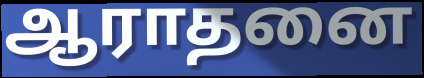
ஆராதனை